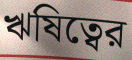
ঋষিত্বের